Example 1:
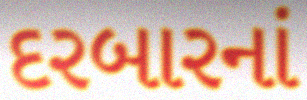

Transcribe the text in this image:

દરબારનાં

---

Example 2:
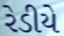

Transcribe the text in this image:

રેડીયે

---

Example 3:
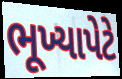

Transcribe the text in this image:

ભૂખ્યાપેટે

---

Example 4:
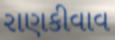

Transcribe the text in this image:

રાણકીવાવ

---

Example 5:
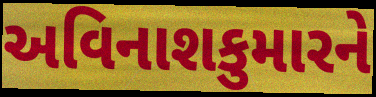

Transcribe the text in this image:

અવિનાશકુમારને